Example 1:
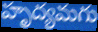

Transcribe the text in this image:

హృద్యమగు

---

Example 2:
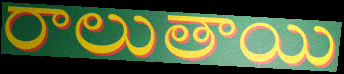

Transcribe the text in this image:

రాలుతాయి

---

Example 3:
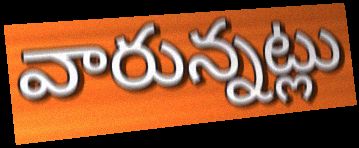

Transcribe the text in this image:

వారున్నట్లు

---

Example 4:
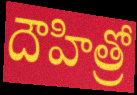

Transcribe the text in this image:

దౌహిత్రో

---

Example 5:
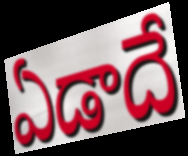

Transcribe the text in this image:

ఏడాదే